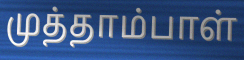
முத்தாம்பாள்